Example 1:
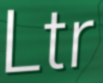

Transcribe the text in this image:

Ltr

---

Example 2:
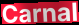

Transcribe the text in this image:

Carnal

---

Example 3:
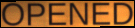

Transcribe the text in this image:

OPENED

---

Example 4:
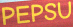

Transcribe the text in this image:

PEPSU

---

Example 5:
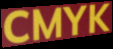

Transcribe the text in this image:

CMYK